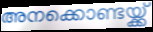
അനക്കൊണ്ടയ്ക്ക്